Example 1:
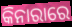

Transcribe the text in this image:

କିନାରାରେ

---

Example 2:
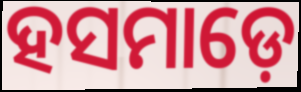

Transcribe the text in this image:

ହସମାଡ଼େ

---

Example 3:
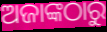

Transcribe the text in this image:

ଅଜାଙ୍କଠାରୁ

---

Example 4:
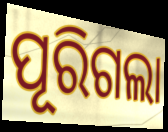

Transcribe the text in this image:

ପୂରିଗଲା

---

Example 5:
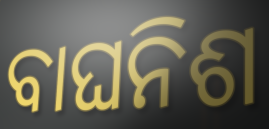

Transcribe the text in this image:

ବାଘନିଶ